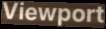
Viewport